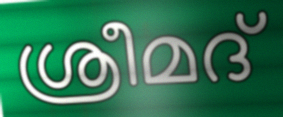
ശ്രീമദ്